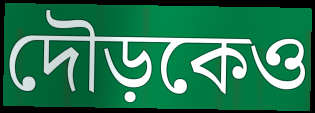
দৌড়কেও